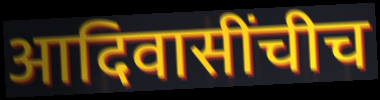
आदिवासींचीच